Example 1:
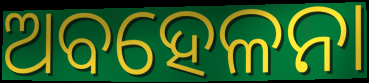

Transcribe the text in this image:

ଅବହେଳନା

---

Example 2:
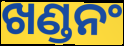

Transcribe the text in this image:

ଖଣ୍ଡନଂ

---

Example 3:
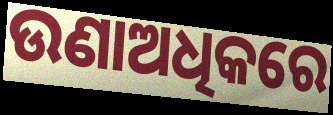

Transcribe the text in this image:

ଉଣାଅଧିକରେ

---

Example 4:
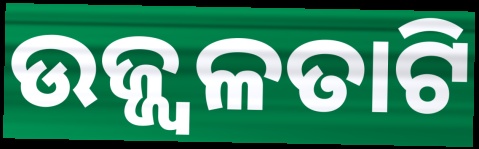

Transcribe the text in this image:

ଉଜ୍ଜ୍ୱଳତାଟି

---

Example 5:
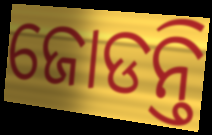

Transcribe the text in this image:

ଜୋଡନ୍ତି